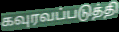
கவுரவப்படுத்தி